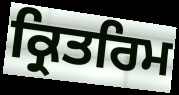
ਕ੍ਰਿਤਰਿਮ